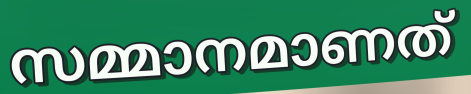
സമ്മാനമാണത്